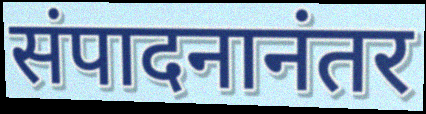
संपादनानंतर